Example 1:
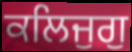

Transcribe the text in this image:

ਕਲਿਜੁਗੁ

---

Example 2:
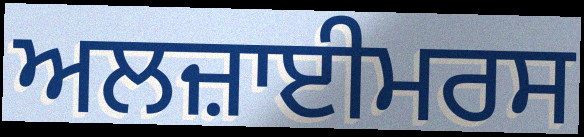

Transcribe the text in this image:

ਅਲਜ਼ਾਈਮਰਸ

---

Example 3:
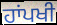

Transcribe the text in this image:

ਹਾਂਪਖੀ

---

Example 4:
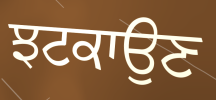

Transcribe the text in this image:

ਝਟਕਾਉਣ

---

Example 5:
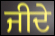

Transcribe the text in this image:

ਜੀਦੇ